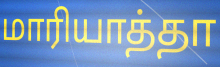
மாரியாத்தா